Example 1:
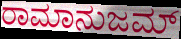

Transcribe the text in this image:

ರಾಮಾನುಜಮ್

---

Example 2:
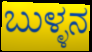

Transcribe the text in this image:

ಬುಳ್ಳನ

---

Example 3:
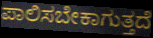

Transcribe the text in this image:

ಪಾಲಿಸಬೇಕಾಗುತ್ತದೆ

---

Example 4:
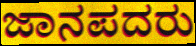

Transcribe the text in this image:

ಜಾನಪದರು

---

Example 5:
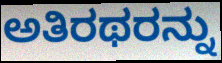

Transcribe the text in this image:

ಅತಿರಥರನ್ನು